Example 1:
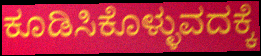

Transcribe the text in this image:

ಕೂಡಿಸಿಕೊಳ್ಳುವದಕ್ಕೆ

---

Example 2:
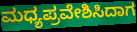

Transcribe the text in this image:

ಮಧ್ಯಪ್ರವೇಶಿಸಿದಾಗ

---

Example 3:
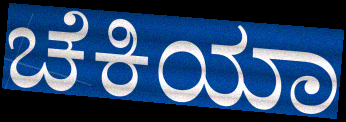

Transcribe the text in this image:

ಚೆಕಿಯಾ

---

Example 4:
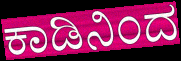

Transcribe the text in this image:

ಕಾಡಿನಿಂದ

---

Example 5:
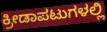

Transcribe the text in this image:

ಕ್ರೀಡಾಪಟುಗಳಲ್ಲಿ